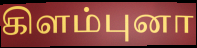
கிளம்புனா